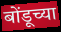
बोंडूच्या